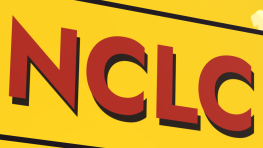
NCLC